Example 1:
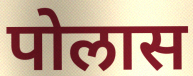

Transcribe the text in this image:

पोलास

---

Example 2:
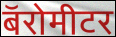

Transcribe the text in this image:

बॅरोमीटर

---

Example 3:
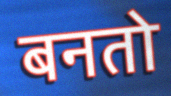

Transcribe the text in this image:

बनतो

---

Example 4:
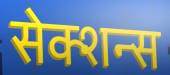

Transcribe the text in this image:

सेक्शन्स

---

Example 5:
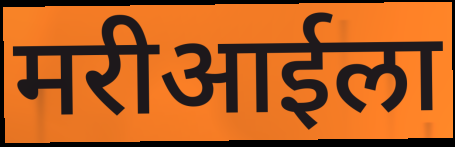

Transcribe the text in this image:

मरीआईला